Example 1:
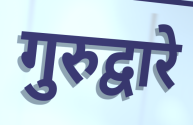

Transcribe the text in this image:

गुरुद्वारे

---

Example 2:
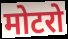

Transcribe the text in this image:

मोटरो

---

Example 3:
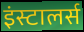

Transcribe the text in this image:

इंस्टालर्स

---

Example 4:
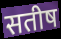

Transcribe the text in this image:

सतीष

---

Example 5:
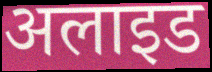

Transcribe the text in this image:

अलाइड